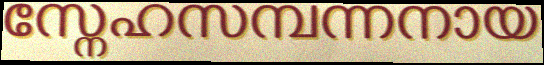
സ്നേഹസമ്പന്നനായ